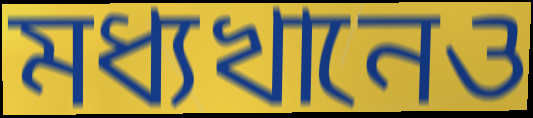
মধ্যখানেও